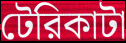
টেরিকাটা